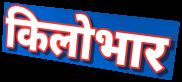
किलोभार